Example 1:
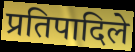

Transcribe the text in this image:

प्रतिपादिले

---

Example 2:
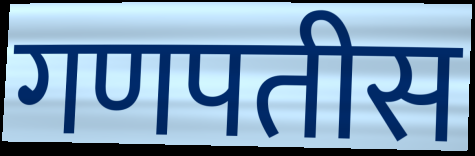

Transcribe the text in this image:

गणपतीस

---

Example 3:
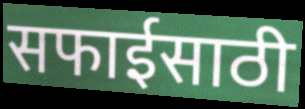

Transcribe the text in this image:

सफाईसाठी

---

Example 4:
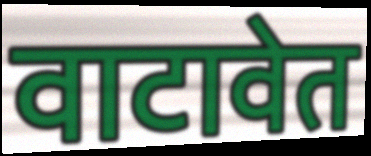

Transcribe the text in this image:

वाटावेत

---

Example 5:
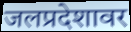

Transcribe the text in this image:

जलप्रदेशावर